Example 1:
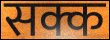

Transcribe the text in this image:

सक्क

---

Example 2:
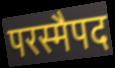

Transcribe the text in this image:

परस्मैपद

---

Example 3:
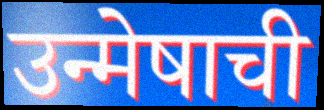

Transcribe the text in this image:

उन्मेषाची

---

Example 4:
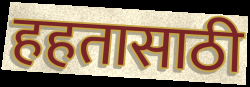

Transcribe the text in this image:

हहतासाठी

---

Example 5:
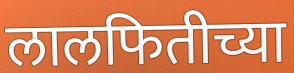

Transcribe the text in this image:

लालफितीच्या